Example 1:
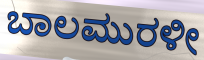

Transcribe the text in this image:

ಬಾಲಮುರಳೀ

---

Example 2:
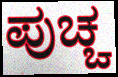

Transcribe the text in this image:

ಪುಚ್ಚ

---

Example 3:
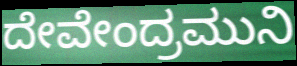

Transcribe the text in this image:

ದೇವೇಂದ್ರಮುನಿ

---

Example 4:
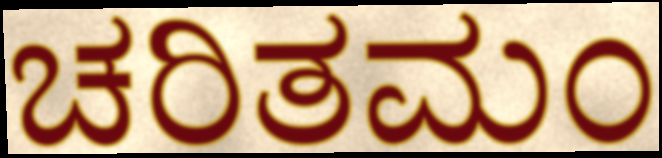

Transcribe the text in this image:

ಚರಿತಮಂ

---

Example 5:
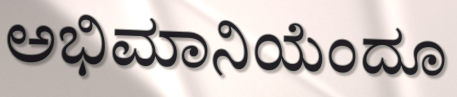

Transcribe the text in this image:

ಅಭಿಮಾನಿಯೆಂದೂ